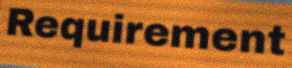
Requirement